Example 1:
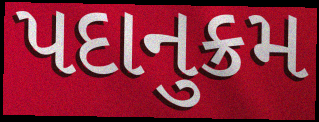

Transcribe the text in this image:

પદાનુક્રમ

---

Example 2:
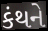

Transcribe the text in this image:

કંથને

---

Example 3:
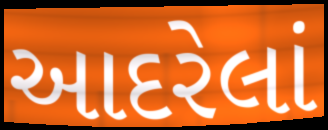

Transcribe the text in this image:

આદરેલાં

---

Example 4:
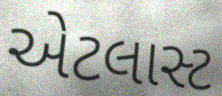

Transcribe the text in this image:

એટલાસ્ટ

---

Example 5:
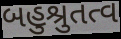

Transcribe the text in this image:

બહુશ્રુતત્વ